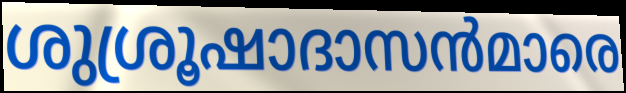
ശുശ്രൂഷാദാസൻമാരെ